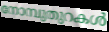
നോമ്പുതുറകൾ